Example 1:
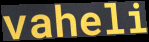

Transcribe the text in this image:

vaheli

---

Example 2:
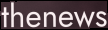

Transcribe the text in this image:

thenews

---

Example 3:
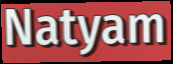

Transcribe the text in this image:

Natyam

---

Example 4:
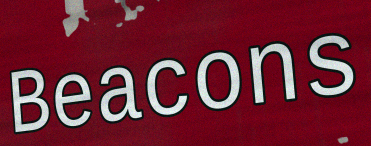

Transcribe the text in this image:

Beacons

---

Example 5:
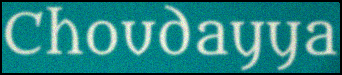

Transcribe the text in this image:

Choudayya